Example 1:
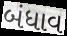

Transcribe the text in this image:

બંધાવ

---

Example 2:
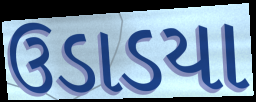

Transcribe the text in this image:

ઉડાડયા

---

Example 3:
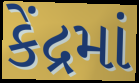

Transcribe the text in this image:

કેંદ્રમાં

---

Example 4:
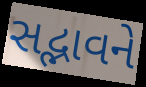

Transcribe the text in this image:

સદ્ભાવને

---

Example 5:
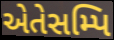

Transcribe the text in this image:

એતેસમ્પિ